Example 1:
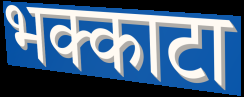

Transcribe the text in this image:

भक्काटा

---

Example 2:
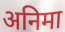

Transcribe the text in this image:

अनिमा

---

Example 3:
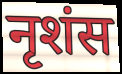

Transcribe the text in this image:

नृशंस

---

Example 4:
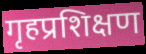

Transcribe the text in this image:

गृहप्रशिक्षण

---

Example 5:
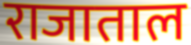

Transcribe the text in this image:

राजाताल